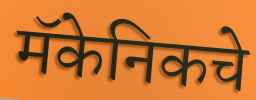
मॅकेनिकचे